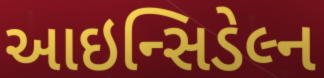
આઇન્સિડેલ્ન